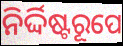
ନିର୍ଦ୍ଦିଷ୍ଟରୂପେ